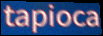
tapioca